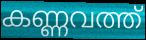
കണ്ണവത്ത്